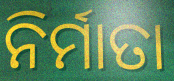
ନିର୍ମାତା